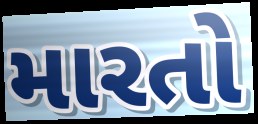
મારતો